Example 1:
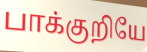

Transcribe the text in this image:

பாக்குறியே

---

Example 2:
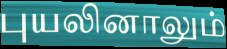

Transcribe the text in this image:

புயலினாலும்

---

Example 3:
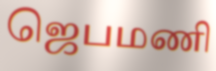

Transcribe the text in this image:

ஜெபமணி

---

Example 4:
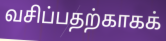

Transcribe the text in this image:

வசிப்பதற்காகக்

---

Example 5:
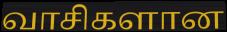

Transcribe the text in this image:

வாசிகளான